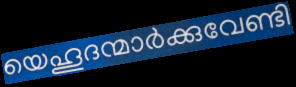
യെഹൂദന്മാർക്കുവേണ്ടി